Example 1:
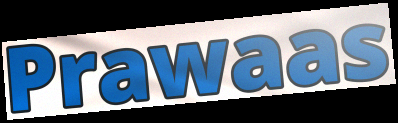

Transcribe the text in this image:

Prawaas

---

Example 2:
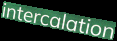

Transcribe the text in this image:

intercalation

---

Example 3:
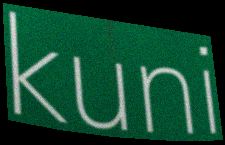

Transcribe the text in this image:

kuni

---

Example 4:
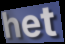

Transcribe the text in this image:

het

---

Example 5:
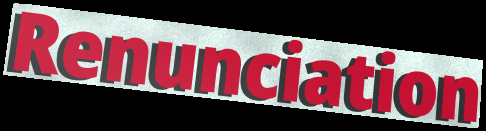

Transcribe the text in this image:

Renunciation